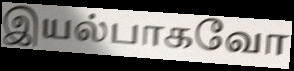
இயல்பாகவோ